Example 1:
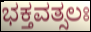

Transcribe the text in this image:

ಭಕ್ತವತ್ಸಲಃ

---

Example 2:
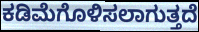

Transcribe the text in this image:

ಕಡಿಮೆಗೊಳಿಸಲಾಗುತ್ತದೆ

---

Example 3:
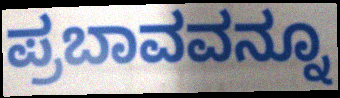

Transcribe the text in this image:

ಪ್ರಬಾವವನ್ನೂ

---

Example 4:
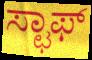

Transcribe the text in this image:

ಸ್ಟಾಫ್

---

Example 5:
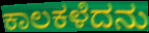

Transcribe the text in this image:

ಕಾಲಕಳೆದನು